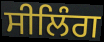
ਸੀਲਿੰਗ